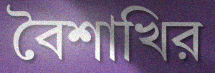
বৈশাখির